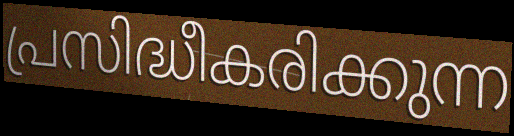
പ്രസിദ്ധീകരിക്കുന്ന